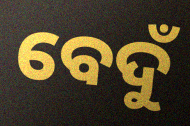
ବେଦୁଁ